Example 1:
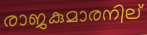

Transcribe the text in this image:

രാജകുമാരനില്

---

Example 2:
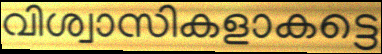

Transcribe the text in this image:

വിശ്വാസികളാകട്ടെ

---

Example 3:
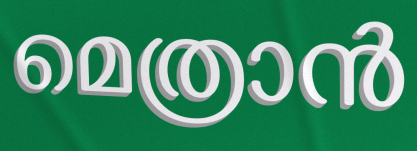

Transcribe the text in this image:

മെത്രാൻ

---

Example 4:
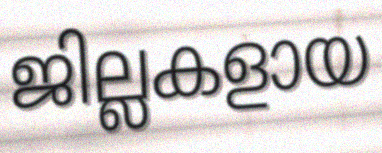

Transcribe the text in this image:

ജില്ലകളായ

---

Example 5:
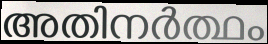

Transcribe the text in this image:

അതിനർത്ഥം